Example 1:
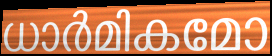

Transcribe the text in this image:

ധാർമികമോ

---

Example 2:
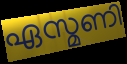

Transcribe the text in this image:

ഏസ്മണി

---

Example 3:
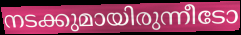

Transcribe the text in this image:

നടക്കുമായിരുന്നീടോ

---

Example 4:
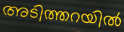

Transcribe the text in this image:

അടിത്തറയിൽ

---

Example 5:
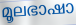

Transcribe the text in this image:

മൂലഭാഷാ